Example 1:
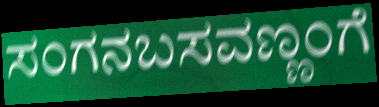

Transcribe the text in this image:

ಸಂಗನಬಸವಣ್ಣಂಗೆ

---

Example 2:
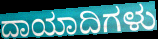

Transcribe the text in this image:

ದಾಯಾದಿಗಳು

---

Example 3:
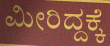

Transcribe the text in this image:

ಮೀರಿದ್ದಕ್ಕೆ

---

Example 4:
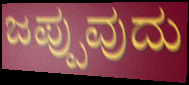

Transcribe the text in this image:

ಜಪ್ಪುವುದು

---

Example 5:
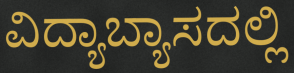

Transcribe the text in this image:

ವಿದ್ಯಾಬ್ಯಾಸದಲ್ಲಿ